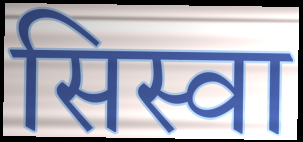
सिस्वा